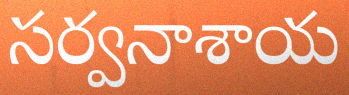
సర్వనాశాయ